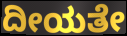
ದೀಯತೇ